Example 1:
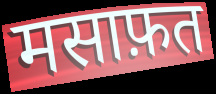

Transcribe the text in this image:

मसाफ़त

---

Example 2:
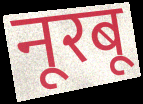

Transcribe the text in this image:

नूरबू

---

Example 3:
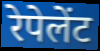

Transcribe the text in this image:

रेपेलेंट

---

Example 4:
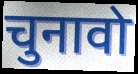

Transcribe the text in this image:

चुनावो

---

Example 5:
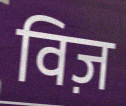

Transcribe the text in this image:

विज़